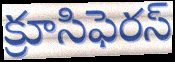
క్రూసిఫెరస్